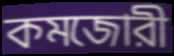
কমজোরী